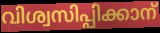
വിശ്വസിപ്പിക്കാന്